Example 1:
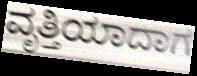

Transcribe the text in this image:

ವೃತ್ತಿಯಾದಾಗ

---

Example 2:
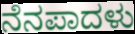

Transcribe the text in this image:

ನೆನಪಾದಳು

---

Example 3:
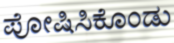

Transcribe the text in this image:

ಪೋಷಿಸಿಕೊಂಡು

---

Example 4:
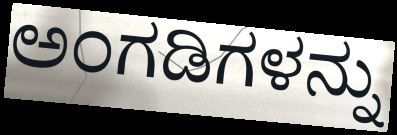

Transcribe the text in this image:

ಅಂಗಡಿಗಳನ್ನು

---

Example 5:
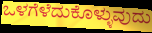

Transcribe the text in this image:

ಒಳಗೆಳೆದುಕೊಳ್ಳುವುದು